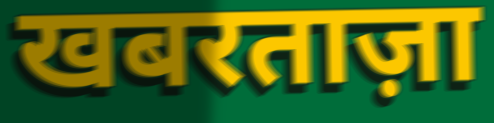
खबरताज़ा